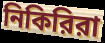
নিকিরিরা